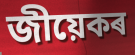
জীয়েকৰ